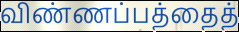
விண்ணப்பத்தைத்